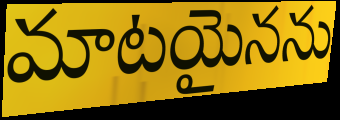
మాటయైనను